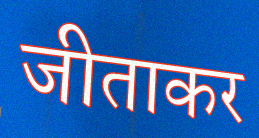
जीताकर